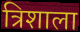
त्रिशाला